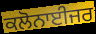
ਕਲੋਨਾਈਜਰ